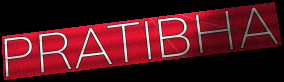
PRATIBHA